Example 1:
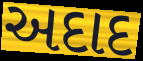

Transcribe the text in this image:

અદાદ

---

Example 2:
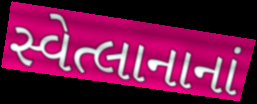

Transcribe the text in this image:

સ્વેત્લાનાનાં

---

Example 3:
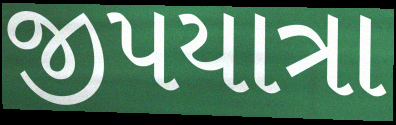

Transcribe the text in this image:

જીપયાત્રા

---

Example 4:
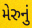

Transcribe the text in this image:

મેરુનું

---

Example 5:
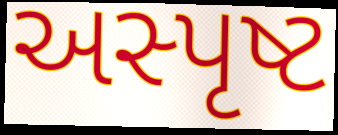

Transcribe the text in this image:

અસ્પૃષ્ટ